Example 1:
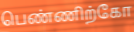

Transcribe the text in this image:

பெண்ணிற்கோ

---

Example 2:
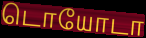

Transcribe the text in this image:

டொயோடா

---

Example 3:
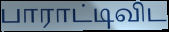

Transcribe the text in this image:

பாராட்டிவிட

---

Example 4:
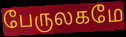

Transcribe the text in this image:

பேருலகமே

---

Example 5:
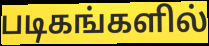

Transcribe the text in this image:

படிகங்களில்